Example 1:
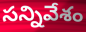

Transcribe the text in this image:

సన్నివేశం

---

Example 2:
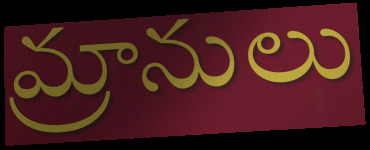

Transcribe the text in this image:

మ్రానులు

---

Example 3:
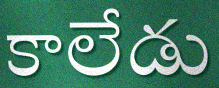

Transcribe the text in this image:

కాలేడు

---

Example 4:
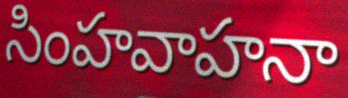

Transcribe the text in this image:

సింహవాహనా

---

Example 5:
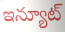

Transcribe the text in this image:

ఇన్యూట్